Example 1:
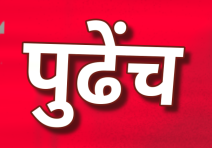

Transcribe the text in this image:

पुढेंच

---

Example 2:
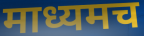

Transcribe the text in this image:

माध्यमच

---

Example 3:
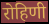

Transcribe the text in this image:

रोहिणी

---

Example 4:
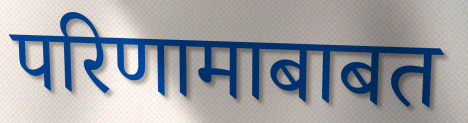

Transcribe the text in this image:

परिणामाबाबत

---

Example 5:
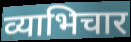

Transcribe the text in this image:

व्याभिचार